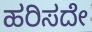
ಹರಿಸದೇ